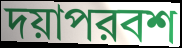
দয়াপরবশ